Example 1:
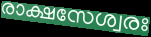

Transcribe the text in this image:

രാക്ഷസേശ്വരഃ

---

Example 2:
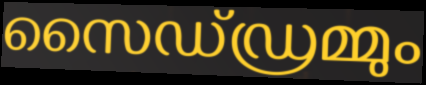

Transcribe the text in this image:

സൈഡ്ഡ്രമ്മും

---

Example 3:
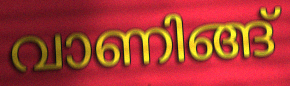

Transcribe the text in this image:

വാണിങ്ങ്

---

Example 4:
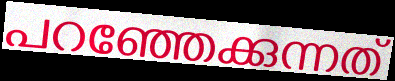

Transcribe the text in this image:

പറഞ്ഞേക്കുന്നത്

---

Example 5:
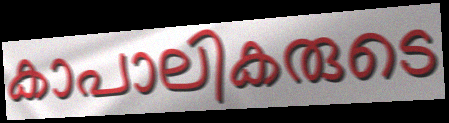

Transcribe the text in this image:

കാപാലികരുടെ